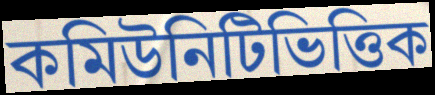
কমিউনিটিভিত্তিক